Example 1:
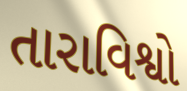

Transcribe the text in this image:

તારાવિશ્વો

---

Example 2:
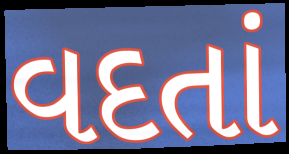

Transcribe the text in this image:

વદતાં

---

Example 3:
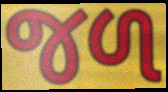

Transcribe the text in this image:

જળ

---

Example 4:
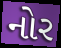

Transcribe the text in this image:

નોર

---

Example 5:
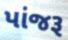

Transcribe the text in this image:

પાંજરૂ